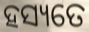
ହସ୍ୟତେ